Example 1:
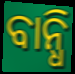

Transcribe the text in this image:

ବାନ୍ଧି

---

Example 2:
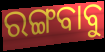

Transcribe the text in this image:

ରଙ୍ଗବାବୁ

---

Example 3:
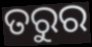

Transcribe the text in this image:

ତରୁର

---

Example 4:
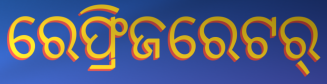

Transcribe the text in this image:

ରେଫ୍ରିଜରେଟର୍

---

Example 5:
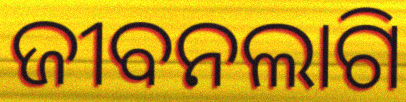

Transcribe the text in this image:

ଜୀବନଲାଗି